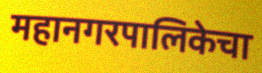
महानगरपालिकेचा